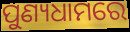
ପୁଣ୍ୟଧାମରେ